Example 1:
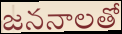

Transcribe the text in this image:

జననాలతో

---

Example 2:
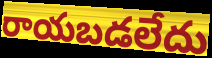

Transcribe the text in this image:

రాయబడలేదు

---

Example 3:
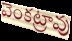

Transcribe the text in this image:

వెంకట్రావు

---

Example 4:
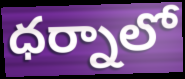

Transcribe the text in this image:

ధర్నాలో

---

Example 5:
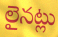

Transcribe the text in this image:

లైనట్లు